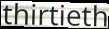
thirtieth